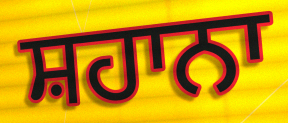
ਸ਼ਹਾਨਾ